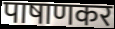
पाषाणकर